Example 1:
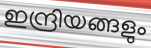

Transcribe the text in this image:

ഇന്ദ്രിയങ്ങളും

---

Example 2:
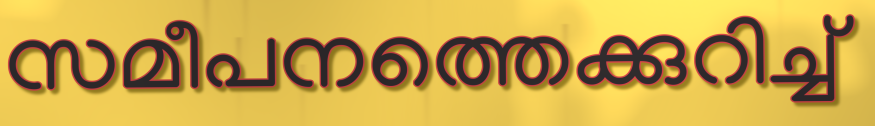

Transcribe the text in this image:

സമീപനത്തെക്കുറിച്ച്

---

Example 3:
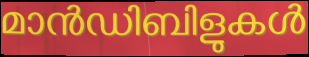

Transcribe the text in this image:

മാൻഡിബിളുകൾ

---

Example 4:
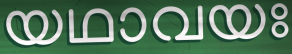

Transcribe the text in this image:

യഥാവയഃ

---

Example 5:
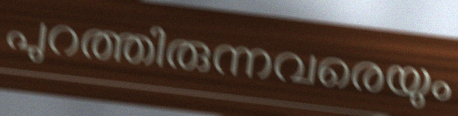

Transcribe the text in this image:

പുറത്തിരുന്നവരെയും